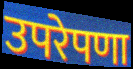
उपरेपणा